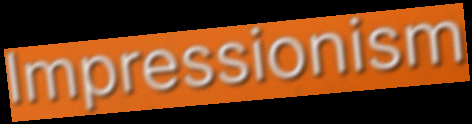
Impressionism